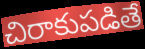
చిరాకుపడితే